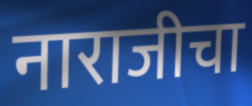
नाराजीचा